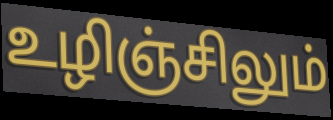
உழிஞ்சிலும்